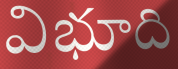
విభూది